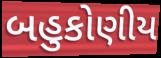
બહુકોણીય